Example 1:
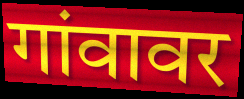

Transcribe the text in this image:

गांवावर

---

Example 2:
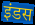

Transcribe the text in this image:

इंडस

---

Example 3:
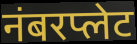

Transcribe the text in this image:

नंबरप्लेट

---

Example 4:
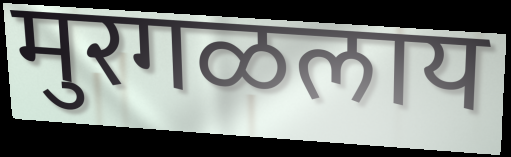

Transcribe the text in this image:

मुरगळलाय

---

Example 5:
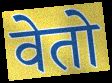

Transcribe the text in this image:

वेतो